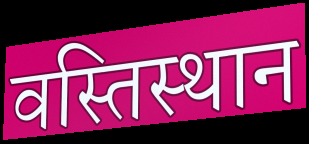
वस्तिस्थान